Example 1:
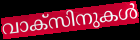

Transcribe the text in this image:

വാക്സിനുകൾ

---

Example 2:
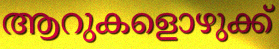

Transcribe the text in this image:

ആറുകളൊഴുക്ക്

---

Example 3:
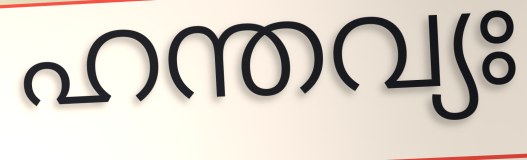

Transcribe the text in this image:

ഹന്തവ്യഃ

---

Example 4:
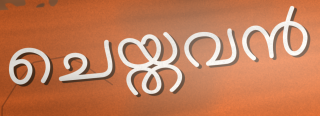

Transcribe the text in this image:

ചെയ്തവൻ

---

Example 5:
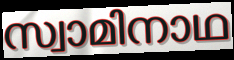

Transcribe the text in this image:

സ്വാമിനാഥ